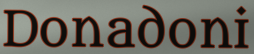
Donadoni